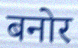
बनोर